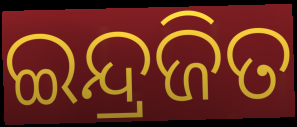
ଇନ୍ଦ୍ରଜିତ